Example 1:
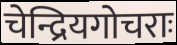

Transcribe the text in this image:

चेन्द्रियगोचराः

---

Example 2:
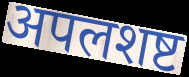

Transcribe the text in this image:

अपलशष्ट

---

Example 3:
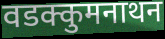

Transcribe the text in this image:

वडक्कुमनाथन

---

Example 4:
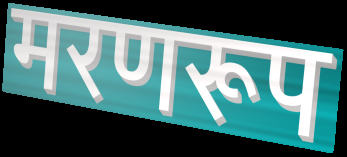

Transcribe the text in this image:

मरणरूप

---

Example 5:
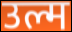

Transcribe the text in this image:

उल्म